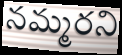
నమ్మరని